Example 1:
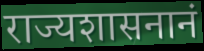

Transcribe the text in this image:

राज्यशासनानं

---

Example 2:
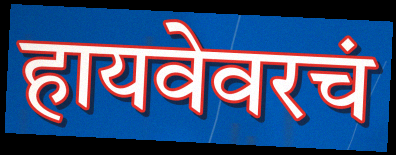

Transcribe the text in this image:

हायवेवरचं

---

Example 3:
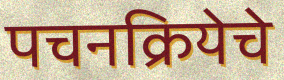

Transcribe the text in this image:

पचनक्रियेचे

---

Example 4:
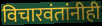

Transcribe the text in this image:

विचारवंतांनीही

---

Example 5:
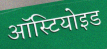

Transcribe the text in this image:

ऑस्टियोइड